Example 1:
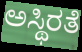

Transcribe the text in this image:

ಅಸ್ಥಿರತೆ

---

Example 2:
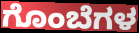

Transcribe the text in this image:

ಗೊಂಬೆಗಳ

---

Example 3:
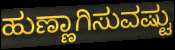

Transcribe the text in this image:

ಹುಣ್ಣಾಗಿಸುವಷ್ಟು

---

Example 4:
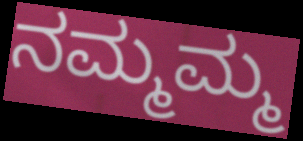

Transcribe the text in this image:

ನಮ್ಮಮ್ಮ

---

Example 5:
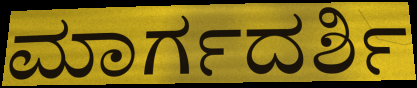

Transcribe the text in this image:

ಮಾರ್ಗದರ್ಶಿ